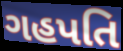
ગહપતિ